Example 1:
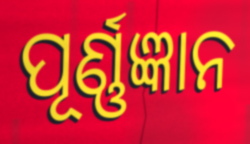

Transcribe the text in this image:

ପୂର୍ଣ୍ଣଜ୍ଞାନ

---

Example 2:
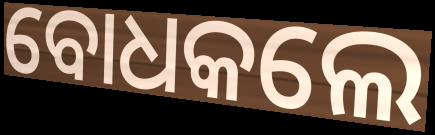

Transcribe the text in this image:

ବୋଧକଲେ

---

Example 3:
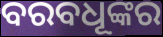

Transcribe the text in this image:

ବରବଧୂଙ୍କର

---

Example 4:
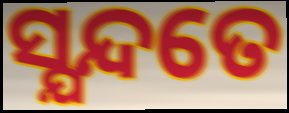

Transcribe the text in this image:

ସ୍ଯନ୍ଦତେ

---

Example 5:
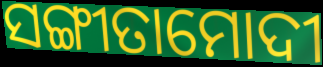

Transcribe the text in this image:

ସଙ୍ଗୀତାମୋଦୀ